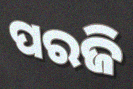
ପରଜି